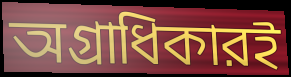
অগ্রাধিকারই